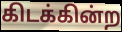
கிடக்கின்ற